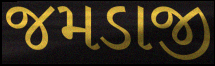
જમડાજી